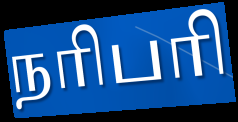
நரிபரி